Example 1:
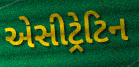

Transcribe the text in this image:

એસીટ્રેટિન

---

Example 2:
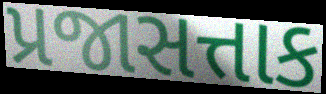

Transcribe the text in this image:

પ્રજાસત્તાક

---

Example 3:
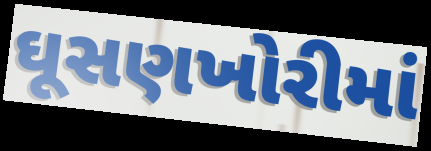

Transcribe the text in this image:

ઘૂસણખોરીમાં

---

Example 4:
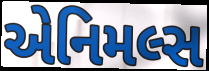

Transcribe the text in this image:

એનિમલ્સ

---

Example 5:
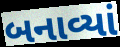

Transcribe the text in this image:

બનાવ્યાં